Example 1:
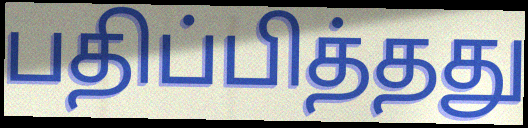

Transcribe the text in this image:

பதிப்பித்தது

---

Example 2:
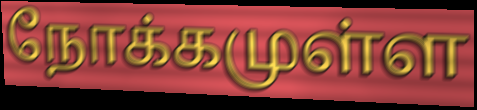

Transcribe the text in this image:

நோக்கமுள்ள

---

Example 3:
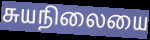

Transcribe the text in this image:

சுயநிலையை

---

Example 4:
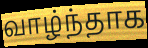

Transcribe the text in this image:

வாழ்ந்தாக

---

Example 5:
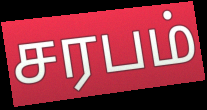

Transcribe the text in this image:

சரபம்